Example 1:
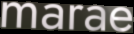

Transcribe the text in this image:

marae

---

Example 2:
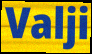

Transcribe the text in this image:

Valji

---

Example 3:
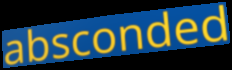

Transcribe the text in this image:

absconded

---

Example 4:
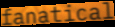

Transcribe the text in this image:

fanatical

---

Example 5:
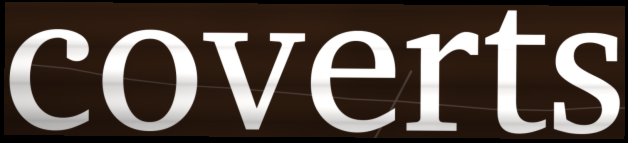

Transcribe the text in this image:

coverts